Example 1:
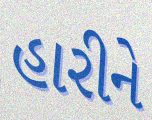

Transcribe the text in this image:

હારીને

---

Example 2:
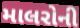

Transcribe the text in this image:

માલરોની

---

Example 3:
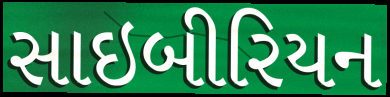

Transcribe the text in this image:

સાઇબીરિયન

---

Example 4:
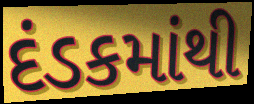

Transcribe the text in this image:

દંડકમાંથી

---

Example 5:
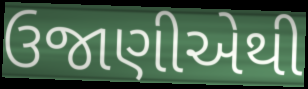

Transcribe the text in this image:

ઉજાણીએથી